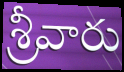
శ్రీవారు